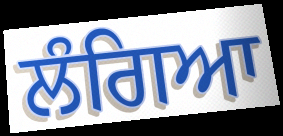
ਲੰਗਿਆ